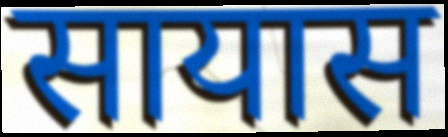
सायास